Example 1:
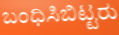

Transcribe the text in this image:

ಬಂಧಿಸಿಬಿಟ್ಟರು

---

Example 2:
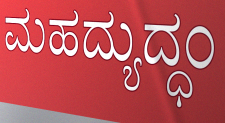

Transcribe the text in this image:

ಮಹದ್ಯುದ್ಧಂ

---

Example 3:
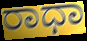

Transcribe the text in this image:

ರಾಧಾ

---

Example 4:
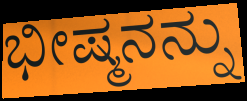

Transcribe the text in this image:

ಭೀಷ್ಮನನ್ನು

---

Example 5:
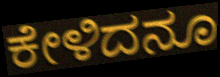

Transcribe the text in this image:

ಕೇಳಿದನೂ